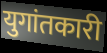
युगांतकारी